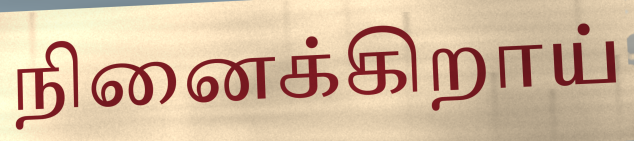
நினைக்கிறாய்